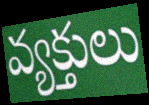
వ్యక్తులు